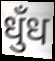
धुँध